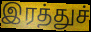
இரத்துச்